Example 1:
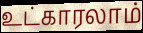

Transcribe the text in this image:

உட்காரலாம்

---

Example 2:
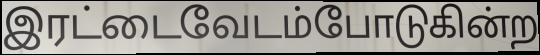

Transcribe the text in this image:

இரட்டைவேடம்போடுகின்ற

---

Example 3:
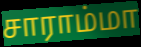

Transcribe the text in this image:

சாராம்மா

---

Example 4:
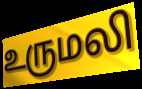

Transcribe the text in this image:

உருமலி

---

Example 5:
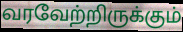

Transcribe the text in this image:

வரவேற்றிருக்கும்